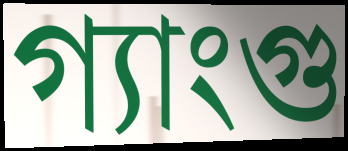
গ্যাংগু